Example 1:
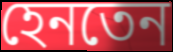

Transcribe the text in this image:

হেনতেন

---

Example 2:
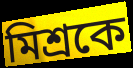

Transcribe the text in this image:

মিশ্রকে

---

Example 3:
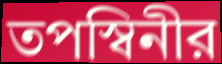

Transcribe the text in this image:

তপস্বিনীর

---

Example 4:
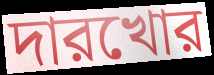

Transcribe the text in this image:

দারখোর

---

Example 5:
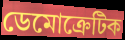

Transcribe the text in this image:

ডেমোক্রেটিক